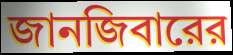
জানজিবারের